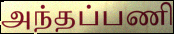
அந்தப்பணி